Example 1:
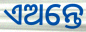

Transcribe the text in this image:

ଏଅନ୍ତେ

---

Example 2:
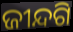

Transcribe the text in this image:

ଜୀନ୍ଦଗି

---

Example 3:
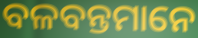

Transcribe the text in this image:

ବଳବନ୍ତମାନେ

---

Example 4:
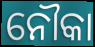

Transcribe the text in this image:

ନୌକା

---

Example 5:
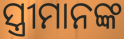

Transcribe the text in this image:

ସ୍ତ୍ରୀମାନଙ୍କ